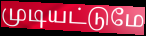
முடியட்டுமே